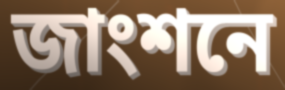
জাংশনে